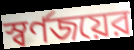
স্বর্ণজয়ের